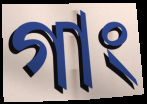
গাং